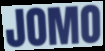
JOMO